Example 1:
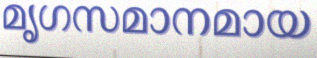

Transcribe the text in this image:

മൃഗസമാനമായ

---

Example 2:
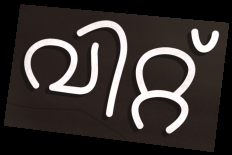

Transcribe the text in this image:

വിറ്റ്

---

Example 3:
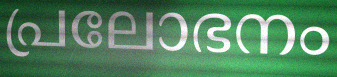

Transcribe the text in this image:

പ്രലോഭനം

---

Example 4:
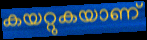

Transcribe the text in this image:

കയറ്റുകയാണ്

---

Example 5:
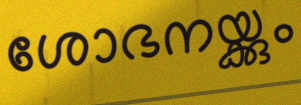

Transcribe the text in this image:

ശോഭനയ്ക്കും